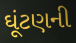
ઘૂંટણની